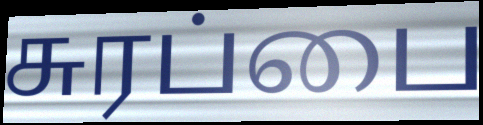
சுரப்பை